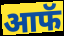
आफॅ